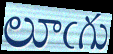
లూఁగు